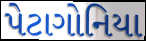
પેટાગોનિયા